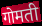
गोमती